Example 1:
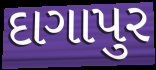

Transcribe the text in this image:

દાગાપુર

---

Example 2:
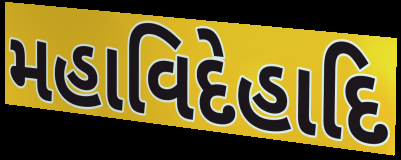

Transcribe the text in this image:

મહાવિદેહાદિ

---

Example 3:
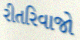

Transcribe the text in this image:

રીતરિવાજો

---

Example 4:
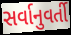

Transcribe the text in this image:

સર્વાનુવર્તી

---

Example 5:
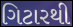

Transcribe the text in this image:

ગિટારથી